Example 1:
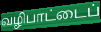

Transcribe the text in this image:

வழிபாட்டைப்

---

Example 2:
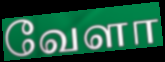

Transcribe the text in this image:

வேளா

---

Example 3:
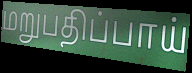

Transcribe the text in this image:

மறுபதிப்பாய்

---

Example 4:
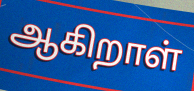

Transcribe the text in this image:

ஆகிறாள்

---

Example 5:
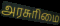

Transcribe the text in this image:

அரசுரிமை